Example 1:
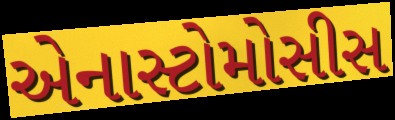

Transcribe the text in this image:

એનાસ્ટોમોસીસ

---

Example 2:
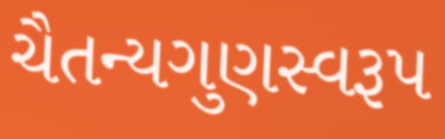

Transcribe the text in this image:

ચૈતન્યગુણસ્વરૂપ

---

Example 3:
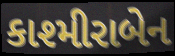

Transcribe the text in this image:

કાશ્મીરાબેન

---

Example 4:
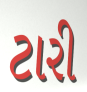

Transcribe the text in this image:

ટારી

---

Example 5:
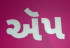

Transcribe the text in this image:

ઍપ